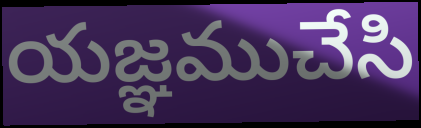
యజ్ఞముచేసి